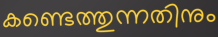
കണ്ടെത്തുന്നതിനും